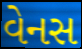
વેનસ